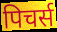
पिचर्स